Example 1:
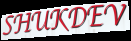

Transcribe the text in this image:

SHUKDEV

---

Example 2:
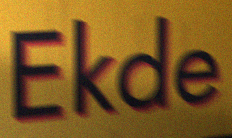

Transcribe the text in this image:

Ekde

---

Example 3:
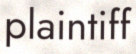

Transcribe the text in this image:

plaintiff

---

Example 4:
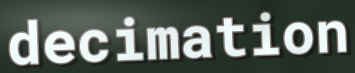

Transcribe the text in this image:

decimation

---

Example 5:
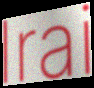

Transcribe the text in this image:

Irai